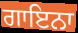
ਗਾਇਨਾ